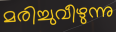
മരിച്ചുവീഴുന്നു